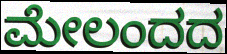
ಮೇಲಂದದ